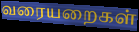
வரையறைகள்